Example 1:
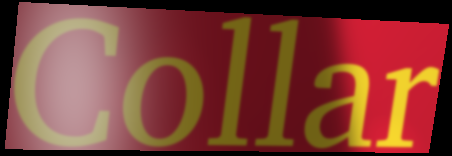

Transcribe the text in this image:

Collar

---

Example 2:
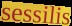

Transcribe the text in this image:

sessilis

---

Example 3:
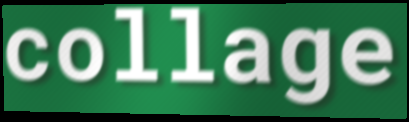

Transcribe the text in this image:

collage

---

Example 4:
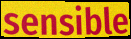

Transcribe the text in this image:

sensible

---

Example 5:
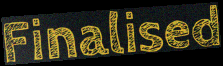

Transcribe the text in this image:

Finalised